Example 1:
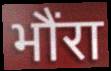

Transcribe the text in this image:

भौंरा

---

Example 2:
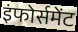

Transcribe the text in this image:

इंफोर्समेंट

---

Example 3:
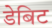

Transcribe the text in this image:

डेबिट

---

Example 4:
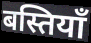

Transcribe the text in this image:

बस्तियाँ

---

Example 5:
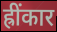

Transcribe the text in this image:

ह्रींकार